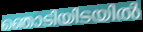
ഞൊടിയിടയിൽ